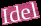
Idel